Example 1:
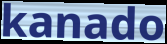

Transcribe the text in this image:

kanado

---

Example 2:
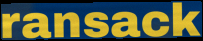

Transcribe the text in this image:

ransack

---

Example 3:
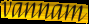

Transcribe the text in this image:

vannam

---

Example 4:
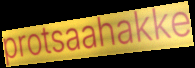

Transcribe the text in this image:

protsaahakke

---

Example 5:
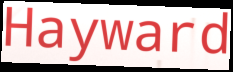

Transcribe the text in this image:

Hayward